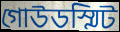
গোউডস্মিট